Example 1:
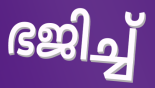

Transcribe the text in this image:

ഭജിച്ച്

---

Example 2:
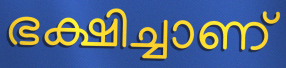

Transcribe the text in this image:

ഭക്ഷിച്ചാണ്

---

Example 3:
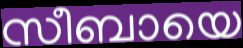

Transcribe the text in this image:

സീബായെ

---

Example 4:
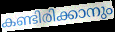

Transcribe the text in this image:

കണ്ടിരിക്കാനും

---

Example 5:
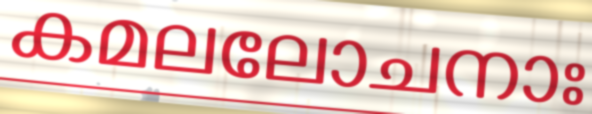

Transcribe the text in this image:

കമലലോചനാഃ